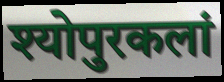
श्योपुरकलां